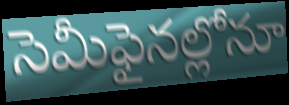
సెమీఫైనల్లోనూ